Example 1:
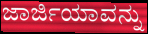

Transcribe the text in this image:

ಜಾರ್ಜಿಯಾವನ್ನು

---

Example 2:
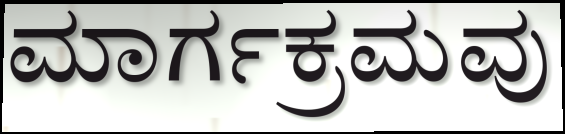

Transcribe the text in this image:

ಮಾರ್ಗಕ್ರಮವು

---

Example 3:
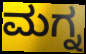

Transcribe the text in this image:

ಮಗ್ನ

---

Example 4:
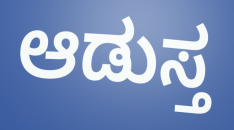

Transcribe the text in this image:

ಆಡುಸ್ತ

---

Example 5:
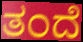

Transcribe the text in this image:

ತಂದೆ